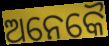
ଅନେକୈ